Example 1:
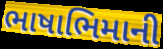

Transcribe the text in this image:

ભાષાભિમાની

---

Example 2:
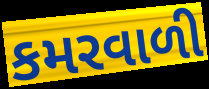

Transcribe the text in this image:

કમરવાળી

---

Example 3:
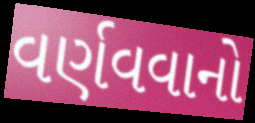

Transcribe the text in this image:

વર્ણવવાનો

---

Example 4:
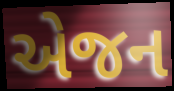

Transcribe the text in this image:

એજન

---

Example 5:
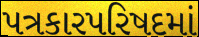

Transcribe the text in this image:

પત્રકારપરિષદમાં